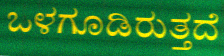
ಒಳಗೂಡಿರುತ್ತದೆ